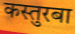
कस्तुरबा